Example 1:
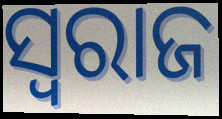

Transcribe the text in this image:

ସ୍ଵରାଜ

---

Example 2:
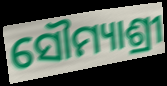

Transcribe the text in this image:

ସୌମ୍ୟାଶ୍ରୀ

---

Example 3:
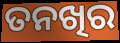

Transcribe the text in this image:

ତନଖିର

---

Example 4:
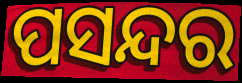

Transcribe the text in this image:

ପସନ୍ଦର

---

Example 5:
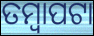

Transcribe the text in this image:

ତମ୍ବାପଟା